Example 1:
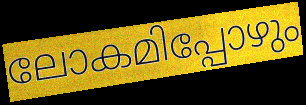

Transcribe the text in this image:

ലോകമിപ്പോഴും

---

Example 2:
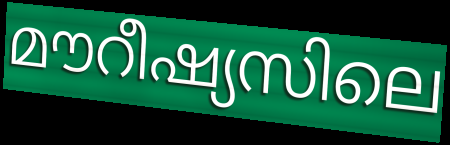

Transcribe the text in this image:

മൗറീഷ്യസിലെ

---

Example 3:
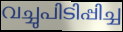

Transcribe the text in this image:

വച്ചുപിടിപ്പിച്ച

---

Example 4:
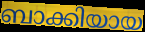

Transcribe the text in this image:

ബാക്കിയായ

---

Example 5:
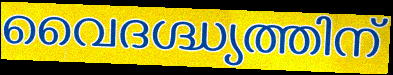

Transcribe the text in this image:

വൈദഗ്ദ്ധ്യത്തിന്